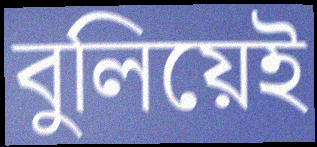
বুলিয়েই